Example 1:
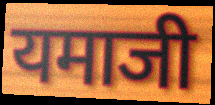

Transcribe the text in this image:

यमाजी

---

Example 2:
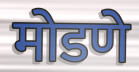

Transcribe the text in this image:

मोडणे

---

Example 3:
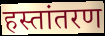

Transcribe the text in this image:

हस्तांतरण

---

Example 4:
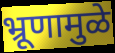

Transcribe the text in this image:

भ्रूणामुळे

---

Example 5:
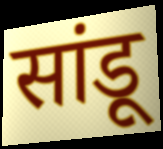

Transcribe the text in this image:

सांडू